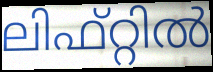
ലിഫ്റ്റിൽ